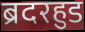
ब्रदरहुड